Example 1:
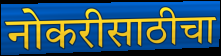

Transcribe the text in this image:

नोकरीसाठीचा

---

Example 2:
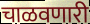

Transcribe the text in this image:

चाळवणारी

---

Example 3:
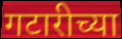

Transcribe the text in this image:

गटारीच्या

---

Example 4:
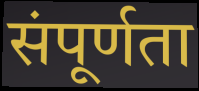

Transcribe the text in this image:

संपूर्णता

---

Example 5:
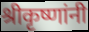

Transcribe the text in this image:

श्रीकृष्णांनी